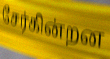
சேர்கின்றன